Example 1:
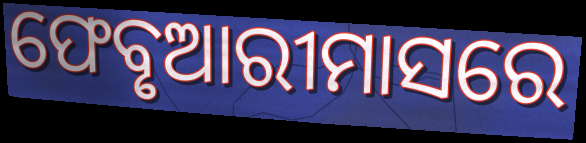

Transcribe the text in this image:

ଫେବୃଆରୀମାସରେ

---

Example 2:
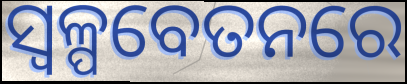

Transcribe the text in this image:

ସ୍ୱଳ୍ପବେତନରେ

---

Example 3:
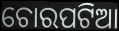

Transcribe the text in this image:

ଚୋରପଟିଆ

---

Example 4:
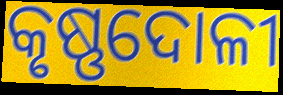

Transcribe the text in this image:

କୃଷ୍ଣଦୋଳୀ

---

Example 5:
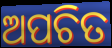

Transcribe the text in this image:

ଅପଚିତ